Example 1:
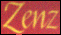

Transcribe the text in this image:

Zenz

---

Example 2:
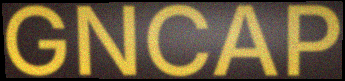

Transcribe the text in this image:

GNCAP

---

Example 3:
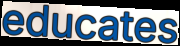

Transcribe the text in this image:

educates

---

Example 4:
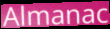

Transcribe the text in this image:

Almanac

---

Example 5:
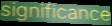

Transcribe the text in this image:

significance